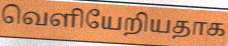
வெளியேறியதாக